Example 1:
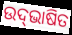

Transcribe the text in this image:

ଉଦ୍‍ଭାଷିତ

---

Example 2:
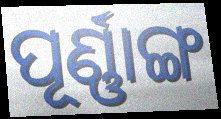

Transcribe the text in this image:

ପୂର୍ଣ୍ଣାଙ୍ଗ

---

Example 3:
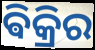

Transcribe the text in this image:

ଵିକ୍ରିର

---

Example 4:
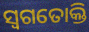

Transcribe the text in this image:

ସ୍ୱଗତୋକ୍ତି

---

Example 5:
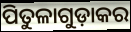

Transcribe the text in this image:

ପିତୁଳାଗୁଡ଼ାକର